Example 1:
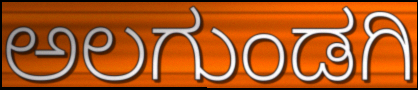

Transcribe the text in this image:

ಅಲಗುಂಡಗಿ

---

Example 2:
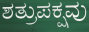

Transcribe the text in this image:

ಶತ್ರುಪಕ್ಷವು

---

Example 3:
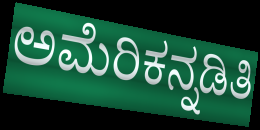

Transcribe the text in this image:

ಅಮೆರಿಕನ್ನಡಿತಿ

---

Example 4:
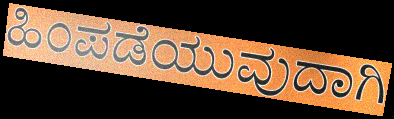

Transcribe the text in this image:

ಹಿಂಪಡೆಯುವುದಾಗಿ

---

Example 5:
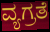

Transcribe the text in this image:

ವ್ಯಗ್ರತೆ